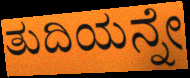
ತುದಿಯನ್ನೇ